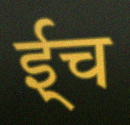
ई्च